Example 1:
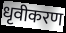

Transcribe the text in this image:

धृवीकरण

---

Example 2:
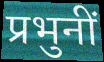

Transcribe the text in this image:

प्रभुनीं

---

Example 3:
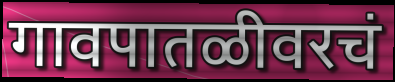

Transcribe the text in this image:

गावपातळीवरचं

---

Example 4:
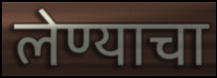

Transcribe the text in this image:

लेण्याचा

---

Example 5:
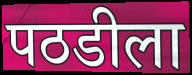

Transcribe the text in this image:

पठडीला